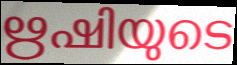
ഋഷിയുടെ